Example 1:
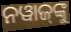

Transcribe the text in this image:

ନୱାଜ୍‍ଙ୍କୁ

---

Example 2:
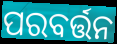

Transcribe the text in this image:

ପରବର୍ତ୍ତନ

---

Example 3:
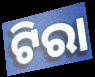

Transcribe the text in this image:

ଟିରା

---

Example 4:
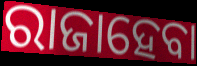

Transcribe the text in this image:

ରାଜାହେବା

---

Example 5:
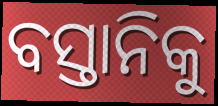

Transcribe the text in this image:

ବସ୍ତାନିକୁ